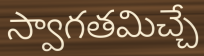
స్వాగతమిచ్చే